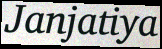
Janjatiya